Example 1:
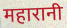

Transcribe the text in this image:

महारानी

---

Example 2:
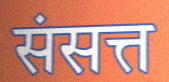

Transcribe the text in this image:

संसत्त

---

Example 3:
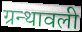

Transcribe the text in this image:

ग्रन्थावली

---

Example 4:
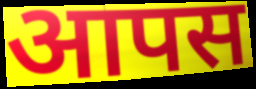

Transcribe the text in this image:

आपस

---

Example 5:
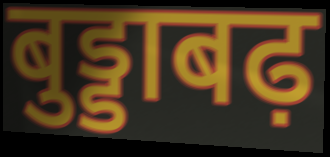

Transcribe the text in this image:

बुड्डाबढ़